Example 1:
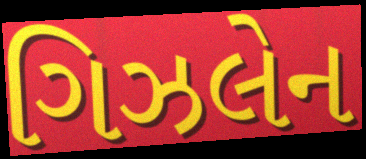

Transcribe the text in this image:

ગિઝલેન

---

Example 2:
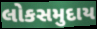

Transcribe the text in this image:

લોકસમુદાય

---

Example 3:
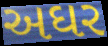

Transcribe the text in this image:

અઘર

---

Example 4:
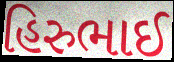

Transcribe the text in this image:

હિરુભાઈ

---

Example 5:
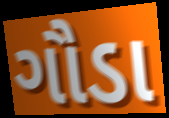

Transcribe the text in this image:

ગૌડા